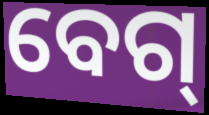
ବେଗ୍